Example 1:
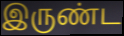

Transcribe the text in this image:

இருண்ட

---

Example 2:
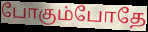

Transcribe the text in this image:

போகும்போதே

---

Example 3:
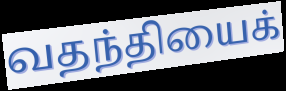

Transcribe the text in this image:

வதந்தியைக்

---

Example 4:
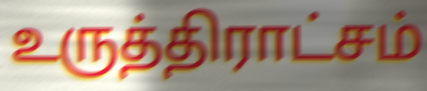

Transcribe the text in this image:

உருத்திராட்சம்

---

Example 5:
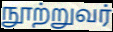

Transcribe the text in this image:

நூற்றுவர்